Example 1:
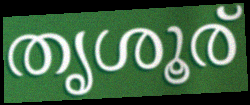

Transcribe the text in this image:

തൃശൂര്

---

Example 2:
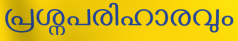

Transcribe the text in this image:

പ്രശ്നപരിഹാരവും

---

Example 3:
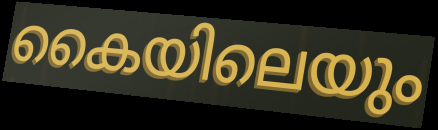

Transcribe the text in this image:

കൈയിലെയും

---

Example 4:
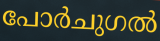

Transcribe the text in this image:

പോർചുഗൽ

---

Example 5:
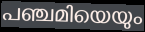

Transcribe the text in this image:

പഞ്ചമിയെയും